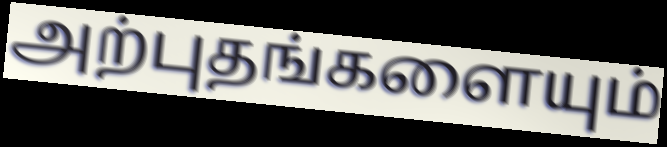
அற்புதங்களையும்